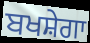
ਬਖਸ਼ੇਗਾ